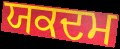
ਯਕਦਮ